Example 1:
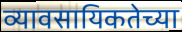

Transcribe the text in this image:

व्यावसायिकतेच्या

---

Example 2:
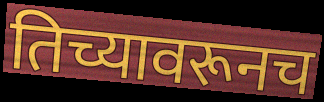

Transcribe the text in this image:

तिच्यावरूनच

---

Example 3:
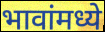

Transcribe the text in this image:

भावांमध्ये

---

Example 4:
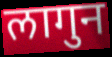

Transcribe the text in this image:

लागुन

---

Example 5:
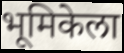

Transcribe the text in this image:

भूमिकेला